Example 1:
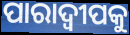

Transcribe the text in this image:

ପାରାଦ୍ୱୀପକୁ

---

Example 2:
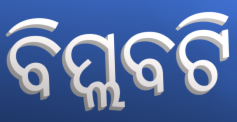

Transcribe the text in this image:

ବିପ୍ଲବଟି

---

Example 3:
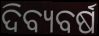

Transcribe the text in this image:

ଦିବ୍ୟବର୍ଷ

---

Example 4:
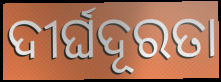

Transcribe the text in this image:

ଦୀର୍ଘଦୂରତା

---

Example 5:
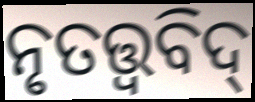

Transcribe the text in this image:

ନୃତତ୍ତ୍ଵବିଦ୍